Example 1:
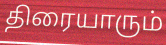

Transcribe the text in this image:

திரையாரும்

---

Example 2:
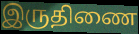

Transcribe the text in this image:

இருதிணை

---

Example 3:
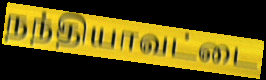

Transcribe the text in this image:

நந்தியாவட்டை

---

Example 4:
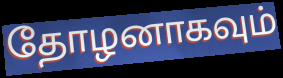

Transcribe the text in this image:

தோழனாகவும்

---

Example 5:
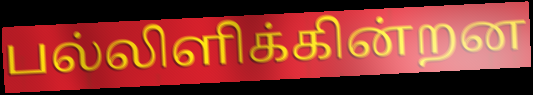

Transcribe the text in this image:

பல்லிளிக்கின்றன